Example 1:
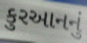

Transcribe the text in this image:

કુરઆનનું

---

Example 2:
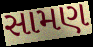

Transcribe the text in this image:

સામણ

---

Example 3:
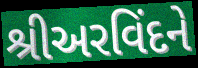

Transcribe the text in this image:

શ્રીઅરવિંદને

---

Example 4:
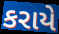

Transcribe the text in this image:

કરાયે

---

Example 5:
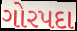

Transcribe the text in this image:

ગોરપદા